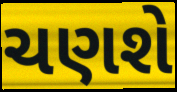
ચણશે